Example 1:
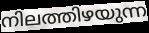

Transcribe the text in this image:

നിലത്തിഴയുന്ന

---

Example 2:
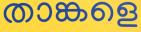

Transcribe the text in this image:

താങ്കളെ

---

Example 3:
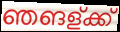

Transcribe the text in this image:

ഞങള്ക്ക്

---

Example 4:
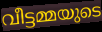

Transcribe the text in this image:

വീട്ടമ്മയുടെ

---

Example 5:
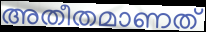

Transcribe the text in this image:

അതീതമാണത്